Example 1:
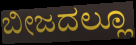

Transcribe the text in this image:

ಬೀಜದಲ್ಲೂ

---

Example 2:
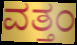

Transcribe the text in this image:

ವತ್ತಂ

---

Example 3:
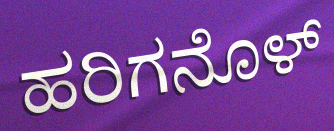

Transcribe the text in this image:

ಹರಿಗನೊಳ್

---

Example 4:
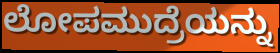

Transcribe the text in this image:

ಲೋಪಮುದ್ರೆಯನ್ನು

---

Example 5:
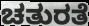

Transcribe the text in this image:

ಚತುರತೆ